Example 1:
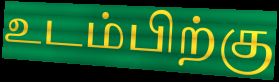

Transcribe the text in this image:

உடம்பிற்கு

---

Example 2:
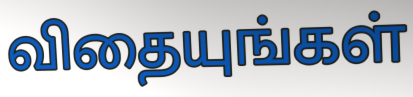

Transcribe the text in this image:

விதையுங்கள்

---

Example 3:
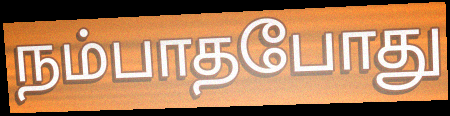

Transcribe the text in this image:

நம்பாதபோது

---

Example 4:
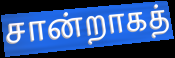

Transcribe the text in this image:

சான்றாகத்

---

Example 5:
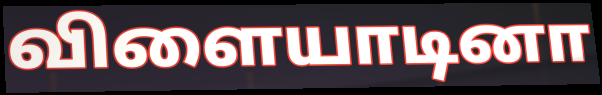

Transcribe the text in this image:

விளையாடினா